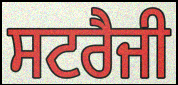
ਸਟਰੈਜੀ